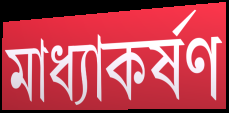
মাধ্যাকর্ষণ